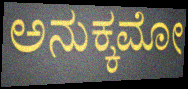
ಅನುಕ್ಕಮೋ